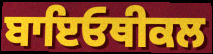
ਬਾਇਓਥੀਕਲ